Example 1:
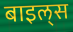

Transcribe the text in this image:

बाइल्स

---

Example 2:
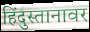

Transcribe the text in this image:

हिंदुस्तानावर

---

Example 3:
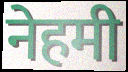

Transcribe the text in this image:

नेहमी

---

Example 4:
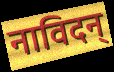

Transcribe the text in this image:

नाविदन्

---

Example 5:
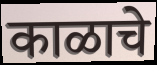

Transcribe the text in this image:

काळाचे